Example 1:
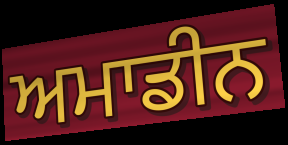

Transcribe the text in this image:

ਅਮਾਡੀਨ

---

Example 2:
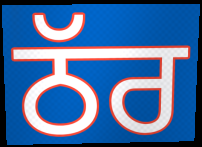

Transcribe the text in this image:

ਠੱਰ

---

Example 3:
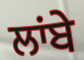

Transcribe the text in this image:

ਲਾਂਬੇ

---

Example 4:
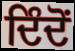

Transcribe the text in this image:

ਦਿੰਦੋਂ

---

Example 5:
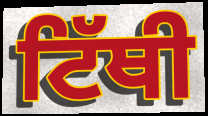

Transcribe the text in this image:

ਟਿੱਥੀ